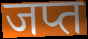
जप्त